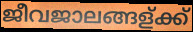
ജീവജാലങ്ങള്ക്ക്